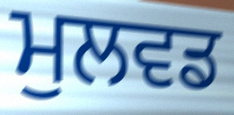
ਮੁਲਵਡ